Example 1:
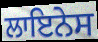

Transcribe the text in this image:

ਲਾਇਨੇਸ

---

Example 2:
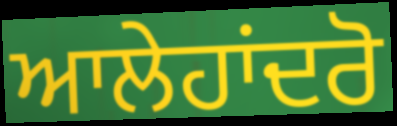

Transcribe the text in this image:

ਆਲੇਹਾਂਦਰੋ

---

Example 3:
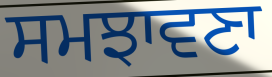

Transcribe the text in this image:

ਸਮਝਾਵਣਾ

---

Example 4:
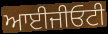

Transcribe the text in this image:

ਆਈਜੀਓਟੀ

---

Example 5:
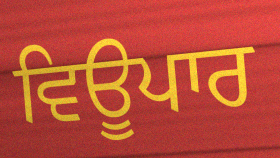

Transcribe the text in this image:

ਵਿਊਪਾਰ